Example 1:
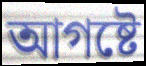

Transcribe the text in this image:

আগষ্টে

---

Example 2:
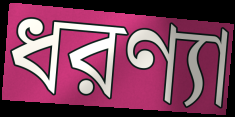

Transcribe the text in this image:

ধরণ্যা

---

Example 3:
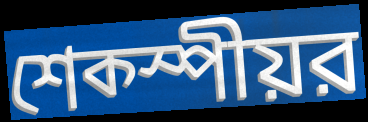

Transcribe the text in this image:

শেক্স্পীয়র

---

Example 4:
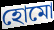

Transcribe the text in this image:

হোমো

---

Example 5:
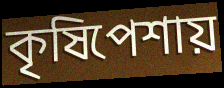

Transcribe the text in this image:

কৃষিপেশায়